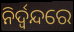
ନିର୍ଦ୍ୱନ୍ଦରେ